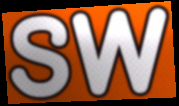
sw